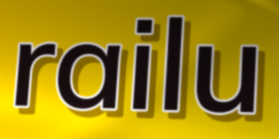
railu